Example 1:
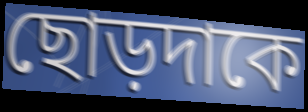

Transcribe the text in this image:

ছোড়দাকে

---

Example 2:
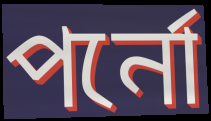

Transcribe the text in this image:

পর্নো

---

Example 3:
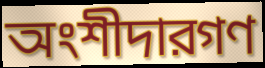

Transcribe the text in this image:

অংশীদারগণ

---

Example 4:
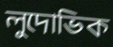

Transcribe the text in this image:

লুদোভিক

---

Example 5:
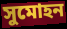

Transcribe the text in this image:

সুমোহন